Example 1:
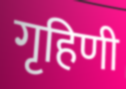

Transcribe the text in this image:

गृहिणी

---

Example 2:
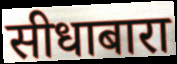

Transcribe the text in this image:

सीधाबारा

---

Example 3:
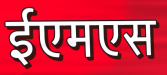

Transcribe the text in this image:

ईएमएस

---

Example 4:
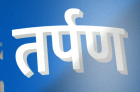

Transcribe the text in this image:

तर्पण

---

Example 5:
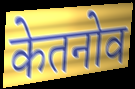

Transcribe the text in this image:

केतनोव